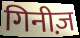
गिनीज़